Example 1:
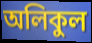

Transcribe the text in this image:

অলিকুল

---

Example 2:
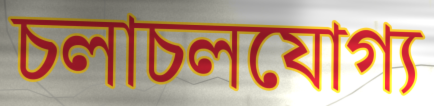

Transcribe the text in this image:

চলাচলযোগ্য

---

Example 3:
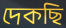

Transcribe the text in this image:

দেকছি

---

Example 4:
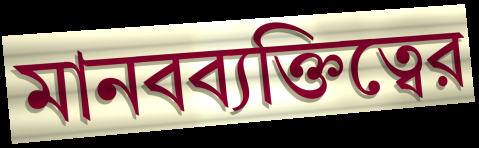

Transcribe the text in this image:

মানবব্যক্তিত্বের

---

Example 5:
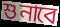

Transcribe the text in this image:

শুনাবে